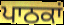
ਪਾਠਕਾਂ